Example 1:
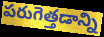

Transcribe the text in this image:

పరుగెత్తడాన్ని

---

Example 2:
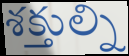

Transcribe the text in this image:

శక్తుల్ని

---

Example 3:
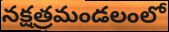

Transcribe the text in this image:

నక్షత్రమండలంలో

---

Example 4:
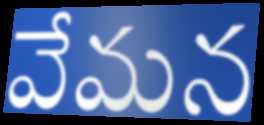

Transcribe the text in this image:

వేమన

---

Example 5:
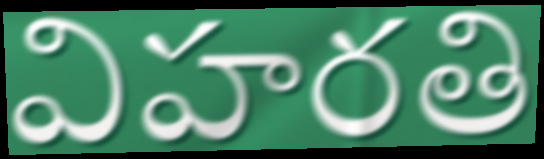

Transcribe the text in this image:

విహరతి